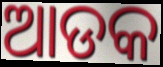
ଆଡକ